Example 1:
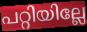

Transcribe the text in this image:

പറ്റിയില്ലേ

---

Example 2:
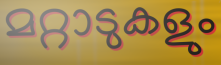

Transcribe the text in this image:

മറ്റാടുകളും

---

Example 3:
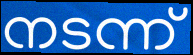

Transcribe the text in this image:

നടന്ന്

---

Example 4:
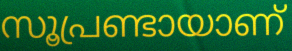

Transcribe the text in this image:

സൂപ്രണ്ടായാണ്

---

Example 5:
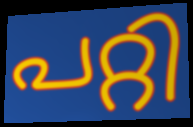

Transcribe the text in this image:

പറ്റി